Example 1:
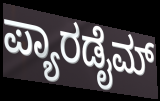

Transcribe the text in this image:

ಪ್ಯಾರಡೈಮ್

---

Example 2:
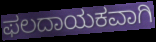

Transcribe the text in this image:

ಫಲದಾಯಕವಾಗಿ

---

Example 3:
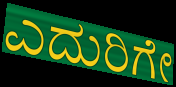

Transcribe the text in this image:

ಎದುರಿಗೇ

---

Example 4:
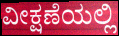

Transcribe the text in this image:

ವೀಕ್ಷಣೆಯಲ್ಲಿ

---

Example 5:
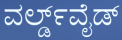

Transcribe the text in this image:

ವರ್ಲ್ಡ್‌ವೈಡ್